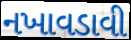
નખાવડાવી